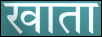
खाता